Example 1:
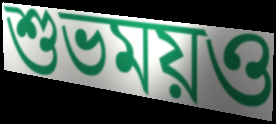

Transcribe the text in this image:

শুভময়ও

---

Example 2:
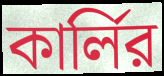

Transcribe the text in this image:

কার্লির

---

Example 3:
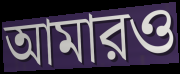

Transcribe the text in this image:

আমারও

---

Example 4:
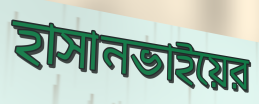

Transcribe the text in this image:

হাসানভাইয়ের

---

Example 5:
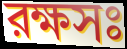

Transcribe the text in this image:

রক্ষসঃ